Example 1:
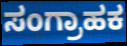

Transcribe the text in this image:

ಸಂಗ್ರಾಹಕ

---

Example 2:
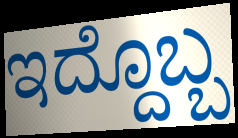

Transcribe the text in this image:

ಇದ್ದೊಬ್ಬ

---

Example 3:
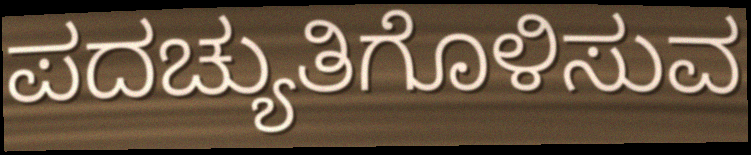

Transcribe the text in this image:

ಪದಚ್ಯುತಿಗೊಳಿಸುವ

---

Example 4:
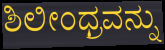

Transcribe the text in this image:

ಶಿಲೀಂಧ್ರವನ್ನು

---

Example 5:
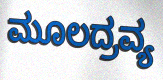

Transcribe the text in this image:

ಮೂಲದ್ರವ್ಯ